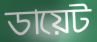
ডায়েট